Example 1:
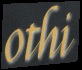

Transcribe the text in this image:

othi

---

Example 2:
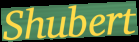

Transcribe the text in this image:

Shubert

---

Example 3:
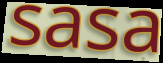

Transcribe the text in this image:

sasa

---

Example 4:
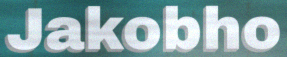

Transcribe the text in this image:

Jakobho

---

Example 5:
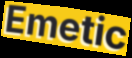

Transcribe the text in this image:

Emetic